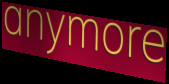
anymore